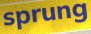
sprung